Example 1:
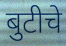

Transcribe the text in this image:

बुटीचे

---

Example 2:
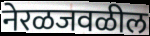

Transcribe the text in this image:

नेरळजवळील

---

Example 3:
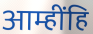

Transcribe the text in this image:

आम्हींहि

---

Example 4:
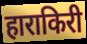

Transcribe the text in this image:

हाराकिरी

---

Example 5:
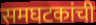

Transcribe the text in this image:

समघटकांची